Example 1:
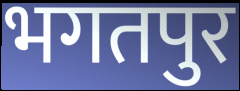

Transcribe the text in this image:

भगतपुर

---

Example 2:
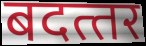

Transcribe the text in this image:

बदत्‍तर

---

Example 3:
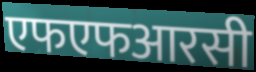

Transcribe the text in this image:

एफएफआरसी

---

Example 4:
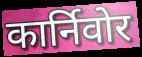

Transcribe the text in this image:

कार्निवोर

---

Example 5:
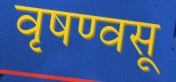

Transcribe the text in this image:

वृषण्वसू